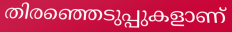
തിരഞ്ഞെടുപ്പുകളാണ്